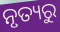
ନୃତ୍ୟରୁ